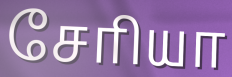
சேரியா